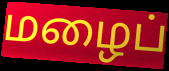
மழைப்